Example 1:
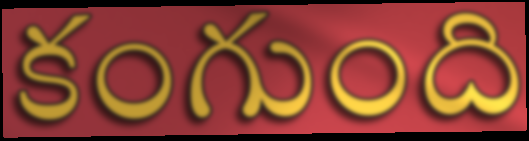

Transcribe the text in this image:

కంగుంది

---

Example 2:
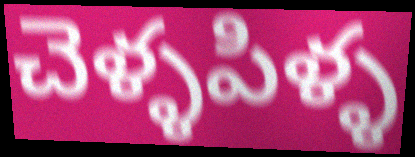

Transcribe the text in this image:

చెళ్ళపిళ్ళ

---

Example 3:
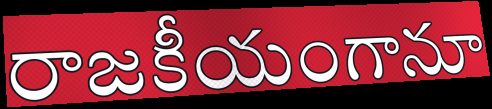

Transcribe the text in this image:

రాజకీయంగానూ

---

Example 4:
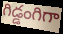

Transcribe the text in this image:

గిడ్డంగిగా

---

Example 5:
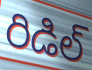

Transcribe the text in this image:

రిడిల్